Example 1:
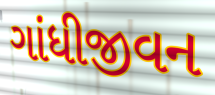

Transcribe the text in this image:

ગાંધીજીવન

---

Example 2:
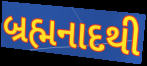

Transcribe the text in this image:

બ્રહ્મનાદથી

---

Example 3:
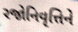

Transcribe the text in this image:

રજોનિવૃત્તિને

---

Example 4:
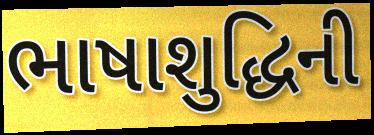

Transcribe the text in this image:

ભાષાશુદ્ધિની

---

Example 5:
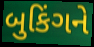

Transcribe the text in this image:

બુકિંગને